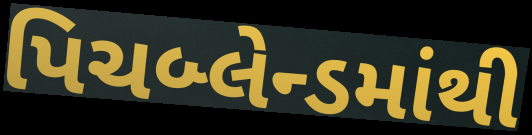
પિચબ્લેન્ડમાંથી